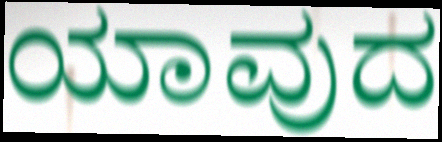
ಯಾವುದ